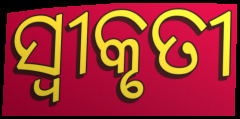
ସ୍ୱୀକୃତୀ